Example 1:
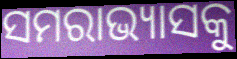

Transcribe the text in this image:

ସମରାଭ୍ୟାସକୁ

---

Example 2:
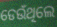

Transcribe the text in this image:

ଡେଉଁଥିଲେ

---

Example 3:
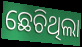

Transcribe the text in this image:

ଛେଚିଥିଲା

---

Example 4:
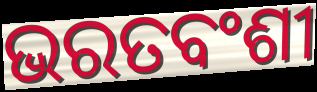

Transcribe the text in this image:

ଭରତବଂଶୀ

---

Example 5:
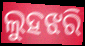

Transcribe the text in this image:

ଲୁହଝରି